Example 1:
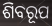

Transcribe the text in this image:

ଶିବରୂପ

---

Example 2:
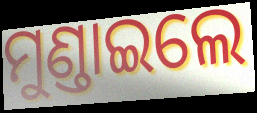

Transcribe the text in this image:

ମୁଣ୍ଡାଇଲେ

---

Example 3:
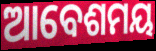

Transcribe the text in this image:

ଆବେଶମୟ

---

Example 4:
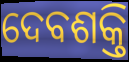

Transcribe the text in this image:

ଦେବଶକ୍ତି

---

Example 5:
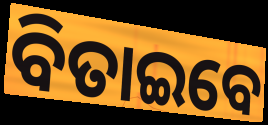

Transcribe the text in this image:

ବିତାଇବେ